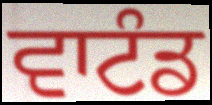
ਵਾਟੰਡ